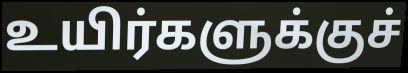
உயிர்களுக்குச்